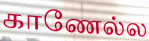
காணேல்ல